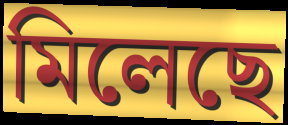
মিলেছে